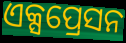
ଏକ୍ସପ୍ରେସନ